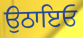
ਉਠਾਇਓ